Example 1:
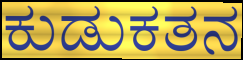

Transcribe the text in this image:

ಕುಡುಕತನ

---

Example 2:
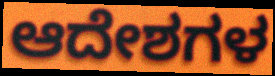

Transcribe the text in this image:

ಆದೇಶಗಳ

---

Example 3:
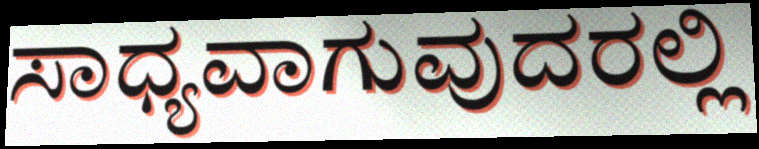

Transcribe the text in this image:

ಸಾಧ್ಯವಾಗುವುದರಲ್ಲಿ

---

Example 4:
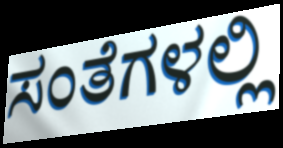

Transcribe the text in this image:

ಸಂತೆಗಳಲ್ಲಿ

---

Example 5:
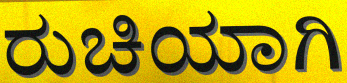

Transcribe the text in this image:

ರುಚಿಯಾಗಿ